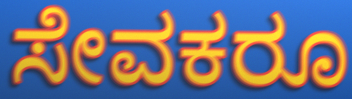
ಸೇವಕರೂ